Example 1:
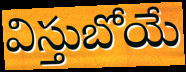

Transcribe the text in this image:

విస్తుబోయే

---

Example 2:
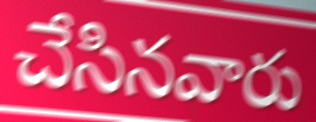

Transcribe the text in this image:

చేసినవారు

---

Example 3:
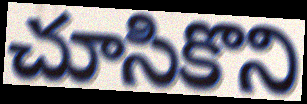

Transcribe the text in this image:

చూసికొని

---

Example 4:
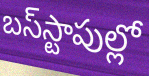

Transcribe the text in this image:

బస్‌స్టాపుల్లో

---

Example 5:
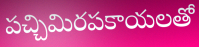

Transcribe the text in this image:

పచ్చిమిరపకాయలతో